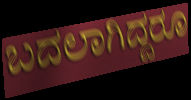
ಬದಲಾಗಿದ್ದರೂ